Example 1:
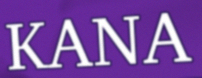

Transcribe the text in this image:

KANA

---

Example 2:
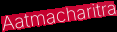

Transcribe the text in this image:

Aatmacharitra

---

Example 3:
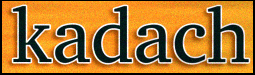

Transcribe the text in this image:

kadach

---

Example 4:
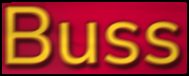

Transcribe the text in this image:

Buss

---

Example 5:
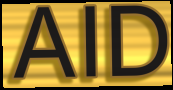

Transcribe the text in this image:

AID